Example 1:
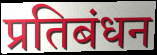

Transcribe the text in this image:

प्रतिबंधन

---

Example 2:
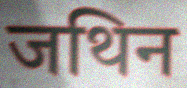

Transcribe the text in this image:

जथिन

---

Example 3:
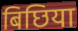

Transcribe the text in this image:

बिछिया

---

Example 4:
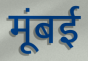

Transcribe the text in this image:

मूंबई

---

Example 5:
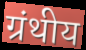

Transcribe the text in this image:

ग्रंथीय